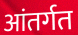
आंतर्गत